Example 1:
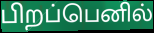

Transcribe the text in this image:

பிறப்பெனில்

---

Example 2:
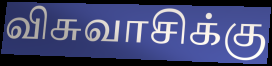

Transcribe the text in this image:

விசுவாசிக்கு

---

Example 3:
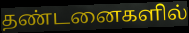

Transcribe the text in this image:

தண்டனைகளில்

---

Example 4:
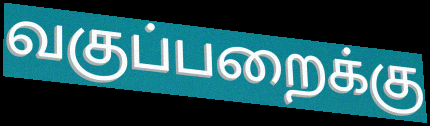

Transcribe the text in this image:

வகுப்பறைக்கு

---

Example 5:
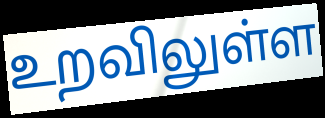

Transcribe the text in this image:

உறவிலுள்ள